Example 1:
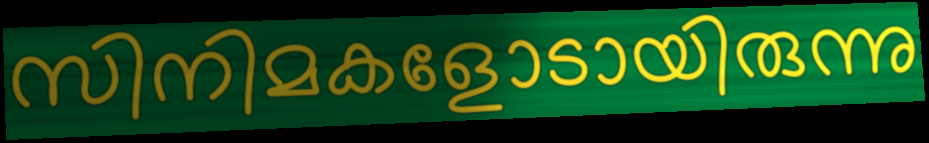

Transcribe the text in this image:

സിനിമകളോടായിരുന്നു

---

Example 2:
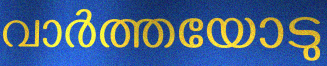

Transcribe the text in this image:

വാർത്തയോടു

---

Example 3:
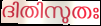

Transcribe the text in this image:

ദിതിസുതഃ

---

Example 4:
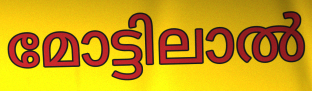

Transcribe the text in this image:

മോട്ടിലാൽ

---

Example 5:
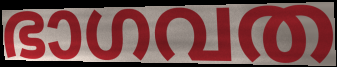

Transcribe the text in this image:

ഭാഗവത